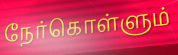
நேர்கொள்ளும்